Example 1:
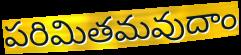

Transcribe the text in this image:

పరిమితమవుదాం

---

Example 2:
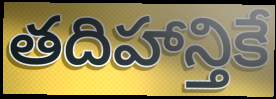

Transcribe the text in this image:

తదిహాన్తికే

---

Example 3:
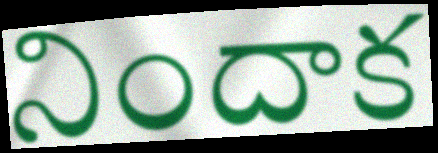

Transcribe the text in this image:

నిందాక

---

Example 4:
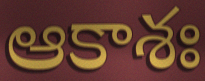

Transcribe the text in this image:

ఆకాశః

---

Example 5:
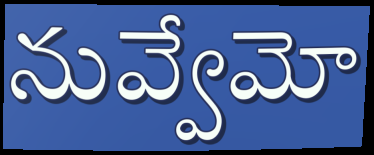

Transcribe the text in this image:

నువ్వేమో